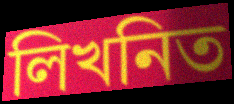
লিখনিত